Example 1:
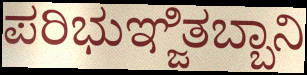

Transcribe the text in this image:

ಪರಿಭುಞ್ಜಿತಬ್ಬಾನಿ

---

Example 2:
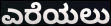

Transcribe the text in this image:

ಎರೆಯಲು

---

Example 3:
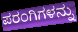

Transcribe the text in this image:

ಪರಂಗಿಗಳನ್ನು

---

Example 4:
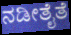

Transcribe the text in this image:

ನಡೀತೈತೆ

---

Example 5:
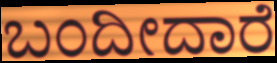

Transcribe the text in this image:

ಬಂದೀದಾರೆ